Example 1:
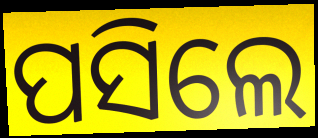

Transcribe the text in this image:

ପସିଲେ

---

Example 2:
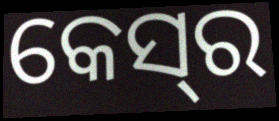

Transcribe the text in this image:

କେସ୍‌ର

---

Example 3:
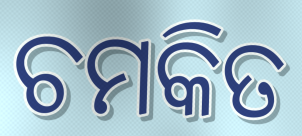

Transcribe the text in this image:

ଚମକିତ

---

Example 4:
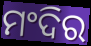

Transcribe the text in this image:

ମଂଦିର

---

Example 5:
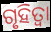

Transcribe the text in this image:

ଗୃହିତ୍ବା